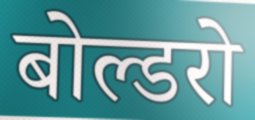
बोल्डरो